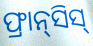
ଫ୍ରାନ୍‌ସିସ୍